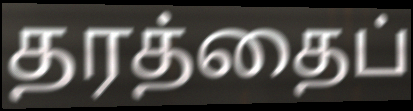
தரத்தைப்